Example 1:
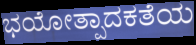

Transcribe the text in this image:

ಭಯೋತ್ಪಾದಕತೆಯ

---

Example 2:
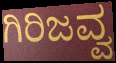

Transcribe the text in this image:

ಗಿರಿಜವ್ವ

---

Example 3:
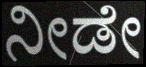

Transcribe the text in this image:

ನೀಡೇ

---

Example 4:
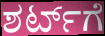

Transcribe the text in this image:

ಶರ್ಟ್‌ಗೆ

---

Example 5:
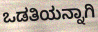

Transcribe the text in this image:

ಒಡತಿಯನ್ನಾಗಿ